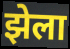
झेला